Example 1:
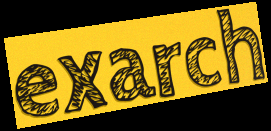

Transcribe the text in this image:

exarch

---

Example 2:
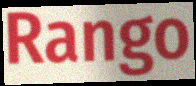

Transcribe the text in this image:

Rango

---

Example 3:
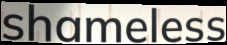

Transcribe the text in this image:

shameless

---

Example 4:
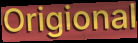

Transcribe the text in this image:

Origional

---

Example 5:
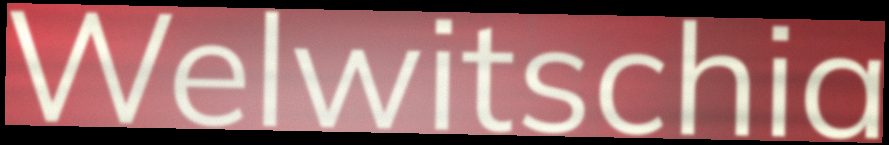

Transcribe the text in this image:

Welwitschia